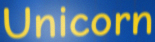
Unicorn